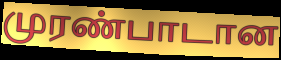
முரண்பாடான